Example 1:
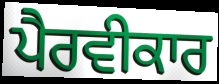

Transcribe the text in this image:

ਪੈਰਵੀਕਾਰ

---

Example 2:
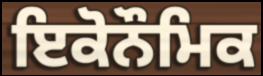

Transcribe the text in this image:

ਇਕੋਨੌਮਿਕ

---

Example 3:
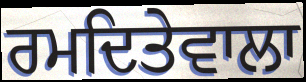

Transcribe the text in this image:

ਰਮਦਿਤੇਵਾਲਾ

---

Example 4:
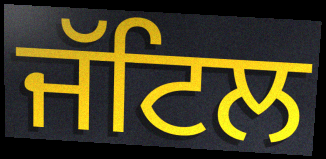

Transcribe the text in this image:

ਜੱਟਿਲ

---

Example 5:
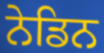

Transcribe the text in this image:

ਨੇਡਿਨ